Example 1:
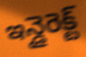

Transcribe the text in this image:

ఇన్డైరెక్ట్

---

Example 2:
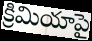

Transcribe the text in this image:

క్రిమియాపై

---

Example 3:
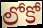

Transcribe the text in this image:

లోకో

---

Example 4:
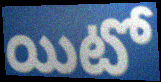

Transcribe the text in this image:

యిటో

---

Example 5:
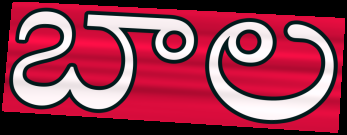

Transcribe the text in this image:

బాల